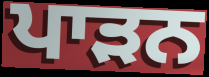
ਪਾੜਨ